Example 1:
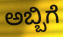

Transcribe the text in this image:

ಅಬ್ಬಿಗೆ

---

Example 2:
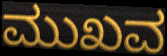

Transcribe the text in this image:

ಮುಖವ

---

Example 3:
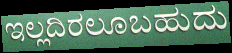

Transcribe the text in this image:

ಇಲ್ಲದಿರಲೂಬಹುದು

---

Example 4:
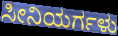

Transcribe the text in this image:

ಸೀನಿಯರ್ಗಳು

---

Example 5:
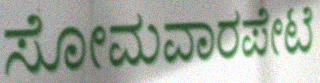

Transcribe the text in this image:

ಸೋಮವಾರಪೇಟೆ